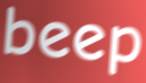
beep